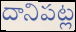
దానిపట్ల